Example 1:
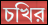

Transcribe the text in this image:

চখির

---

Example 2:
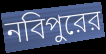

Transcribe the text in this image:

নবিপুরের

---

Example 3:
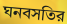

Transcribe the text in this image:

ঘনবসতির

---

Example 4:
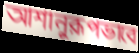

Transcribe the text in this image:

আশানুরূপভাবে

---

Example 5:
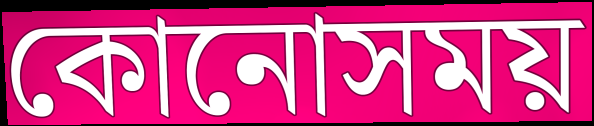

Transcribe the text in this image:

কোনোসময়